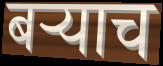
बऱ्याच